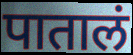
पातालं